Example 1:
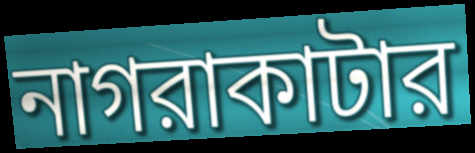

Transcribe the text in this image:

নাগরাকাটার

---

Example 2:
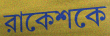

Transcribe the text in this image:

রাকেশকে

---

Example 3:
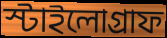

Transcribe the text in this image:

স্টাইলোগ্রাফ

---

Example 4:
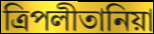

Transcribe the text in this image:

ত্রিপলীতানিয়া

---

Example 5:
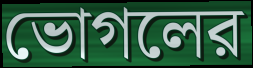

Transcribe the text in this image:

ভোগলের